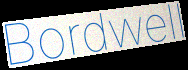
Bordwell